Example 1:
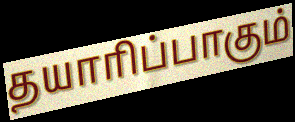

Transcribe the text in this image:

தயாரிப்பாகும்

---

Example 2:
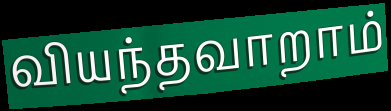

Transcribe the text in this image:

வியந்தவாறாம்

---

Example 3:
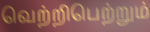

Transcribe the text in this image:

வெற்றிபெற்றும்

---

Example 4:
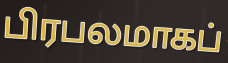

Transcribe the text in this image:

பிரபலமாகப்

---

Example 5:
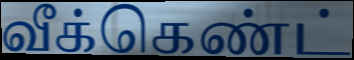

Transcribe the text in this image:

வீக்கெண்ட்